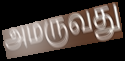
அமருவது